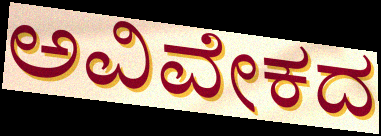
ಅವಿವೇಕದ